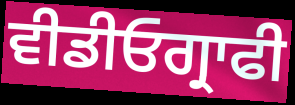
ਵੀਡੀਓਗ੍ਰਾਫੀ